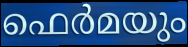
ഫെർമയും